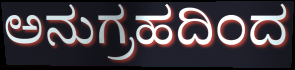
ಅನುಗ್ರಹದಿಂದ